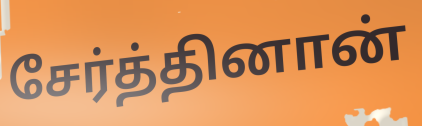
சேர்த்தினான்